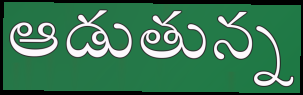
ఆడుతున్న